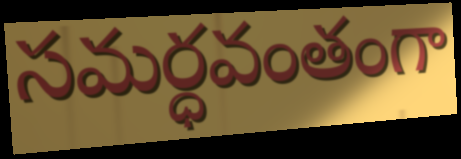
సమర్ధవంతంగా